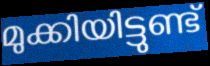
മുക്കിയിട്ടുണ്ട്